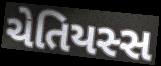
ચેતિયસ્સ